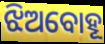
ଝିଅବୋହୂ